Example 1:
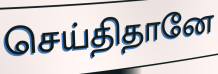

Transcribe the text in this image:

செய்திதானே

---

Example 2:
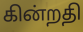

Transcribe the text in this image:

கின்றதி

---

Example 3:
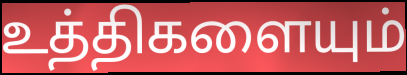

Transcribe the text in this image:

உத்திகளையும்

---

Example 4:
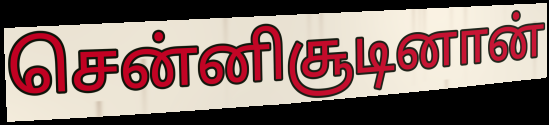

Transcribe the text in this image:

சென்னிசூடினான்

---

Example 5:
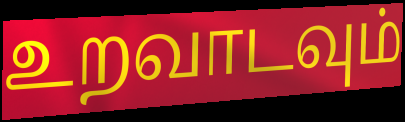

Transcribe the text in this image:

உறவாடவும்